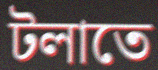
টলাতে